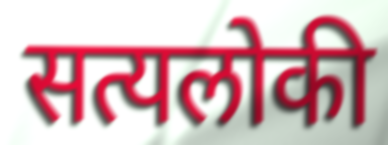
सत्यलोकी